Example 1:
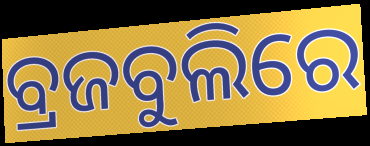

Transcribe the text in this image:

ବ୍ରଜବୁଲିରେ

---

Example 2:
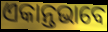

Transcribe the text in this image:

ଏକାନ୍ତଭାବେ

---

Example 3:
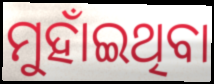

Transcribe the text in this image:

ମୁହାଁଇଥିବା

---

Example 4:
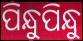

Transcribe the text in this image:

ପିନ୍ଧୁପିନ୍ଧୁ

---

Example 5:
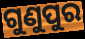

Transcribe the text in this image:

ଗୁଣୁପୁର